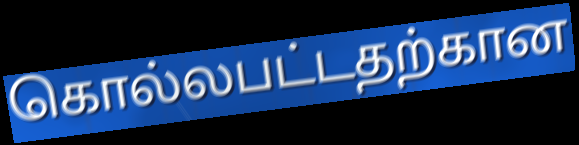
கொல்லபட்டதற்கான